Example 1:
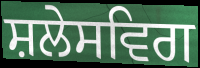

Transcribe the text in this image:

ਸ਼ਲੇਸਵਿਗ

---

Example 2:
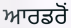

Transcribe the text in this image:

ਆਰਡਰੋਂ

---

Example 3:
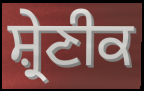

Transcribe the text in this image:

ਸ਼੍ਰੇਣੀਕ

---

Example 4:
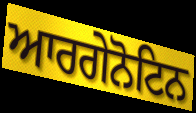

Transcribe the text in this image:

ਆਰਗੇਨੋਟਿਨ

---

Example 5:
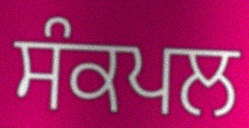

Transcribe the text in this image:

ਸੰਕਪਲ